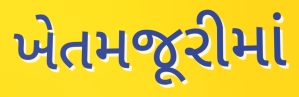
ખેતમજૂરીમાં